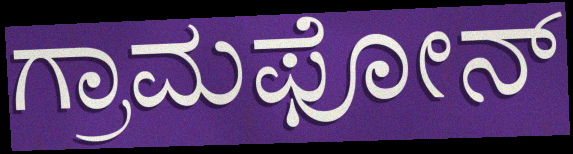
ಗ್ರಾಮಫೋನ್